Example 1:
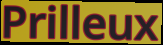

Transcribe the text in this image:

Prilleux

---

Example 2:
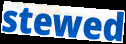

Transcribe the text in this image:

stewed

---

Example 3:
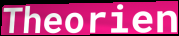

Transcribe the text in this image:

Theorien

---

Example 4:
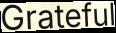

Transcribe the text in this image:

Grateful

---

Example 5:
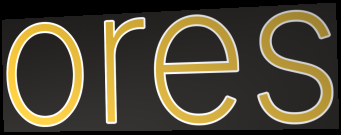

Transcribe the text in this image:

ores